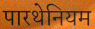
पारथेनियम